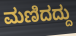
ಮಣಿದದ್ದು